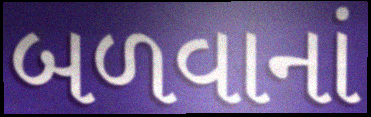
બળવાનાં